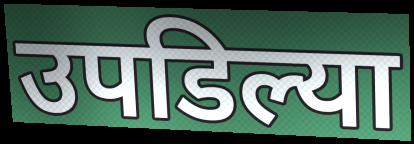
उपडिल्या